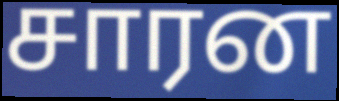
சாரன